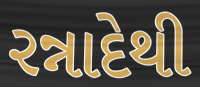
રન્નાદેથી